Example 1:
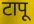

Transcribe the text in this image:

टापू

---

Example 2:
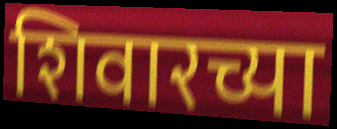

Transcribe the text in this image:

शिवारच्या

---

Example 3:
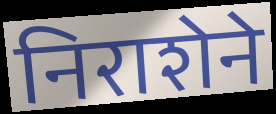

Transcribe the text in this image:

निराशेने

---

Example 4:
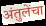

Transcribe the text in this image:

अंतुलेंचा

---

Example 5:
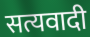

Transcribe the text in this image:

सत्यवादी